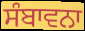
ਸੰਬਾਵਨਾ